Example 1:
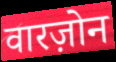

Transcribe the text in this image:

वारज़ोन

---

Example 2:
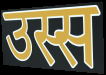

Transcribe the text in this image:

उस्स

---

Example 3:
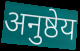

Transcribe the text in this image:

अनुष्ठेय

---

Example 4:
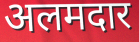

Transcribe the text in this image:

अलमदार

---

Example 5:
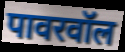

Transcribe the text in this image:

पावरवॉल